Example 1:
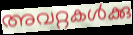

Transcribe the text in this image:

അവറ്റകൾക്കു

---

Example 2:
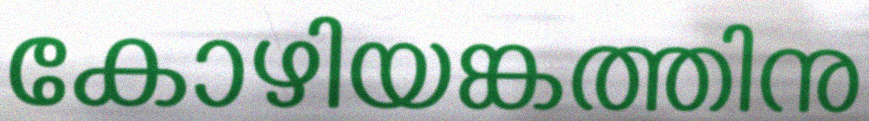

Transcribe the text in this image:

കോഴിയങ്കത്തിനു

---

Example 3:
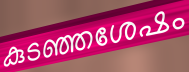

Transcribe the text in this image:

കുടഞ്ഞശേഷം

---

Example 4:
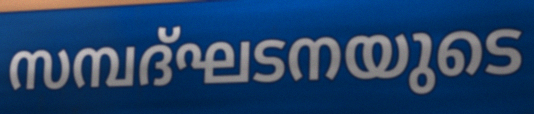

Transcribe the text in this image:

സമ്പദ്ഘടനയുടെ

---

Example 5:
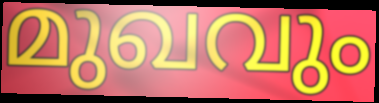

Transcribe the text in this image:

മുഖവും